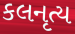
કલનૃત્ય